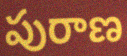
పురాణ